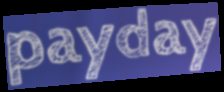
payday